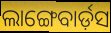
ଲାଙ୍ଗେବାର୍ଡ଼ସ